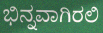
ಭಿನ್ನವಾಗಿರಲಿ